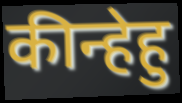
कीन्हेहु